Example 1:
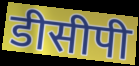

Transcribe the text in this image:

डीसीपी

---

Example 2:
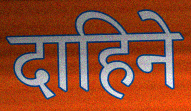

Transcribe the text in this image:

दाहिने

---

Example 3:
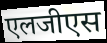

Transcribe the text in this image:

एलजीएस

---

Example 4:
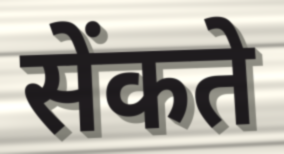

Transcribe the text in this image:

सेंकते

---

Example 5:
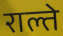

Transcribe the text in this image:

राल्ते